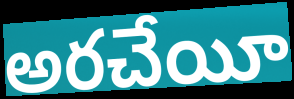
అరచేయీ